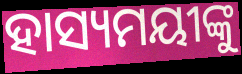
ହାସ୍ୟମୟୀଙ୍କୁ